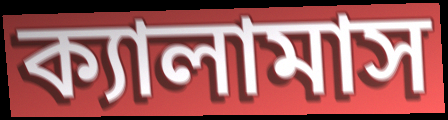
ক্যালামাস